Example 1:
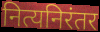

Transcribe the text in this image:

नित्यनिरंतर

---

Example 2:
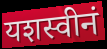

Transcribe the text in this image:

यशस्वीनं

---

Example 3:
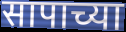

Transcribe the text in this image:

सापाच्या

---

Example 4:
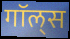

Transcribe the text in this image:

गॉल्स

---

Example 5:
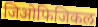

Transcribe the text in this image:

जिओफिजिकल